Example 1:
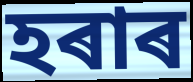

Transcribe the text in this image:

হৰাৰ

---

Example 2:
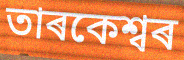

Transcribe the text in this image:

তাৰকেশ্বৰ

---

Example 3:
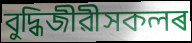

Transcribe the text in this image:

বুদ্ধিজীৱীসকলৰ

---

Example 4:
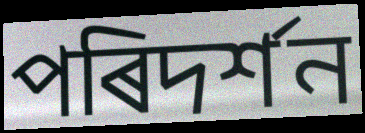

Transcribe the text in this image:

পৰিদৰ্শন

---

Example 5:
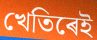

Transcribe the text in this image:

খেতিৰেই